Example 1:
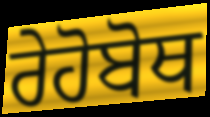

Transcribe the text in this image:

ਰੇਹੋਬੋਥ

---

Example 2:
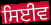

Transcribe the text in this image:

ਸਿਈਵ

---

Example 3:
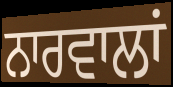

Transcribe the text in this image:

ਨਾਰਵਾਲਾਂ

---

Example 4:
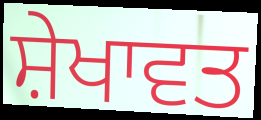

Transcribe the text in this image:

ਸ਼ੇਖਾਵਤ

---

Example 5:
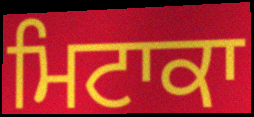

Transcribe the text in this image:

ਮਿਟਾਕਾ